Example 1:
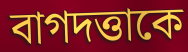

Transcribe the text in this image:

বাগদত্তাকে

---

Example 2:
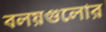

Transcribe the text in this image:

বলয়গুলোর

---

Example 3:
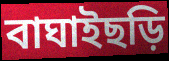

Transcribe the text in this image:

বাঘাইছড়ি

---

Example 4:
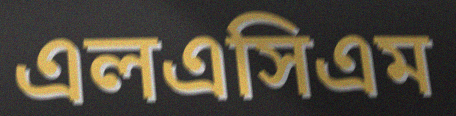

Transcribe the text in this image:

এলএসিএম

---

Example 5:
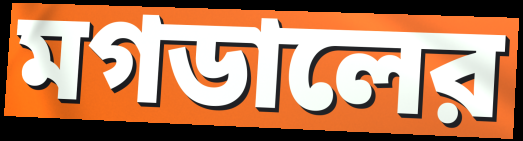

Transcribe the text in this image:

মগডালের